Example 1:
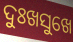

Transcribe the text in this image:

ଦୁଃଖସୁଖେ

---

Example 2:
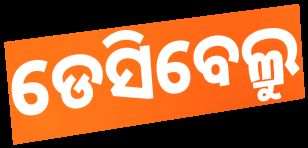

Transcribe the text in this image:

ଡେସିବେଲ୍ରୁ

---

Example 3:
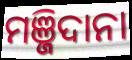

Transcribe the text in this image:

ମଞ୍ଜିଦାନା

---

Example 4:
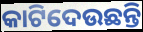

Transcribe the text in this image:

କାଟିଦେଉଛନ୍ତି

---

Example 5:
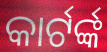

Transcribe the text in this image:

କାର୍ଟର୍ଙ୍କ